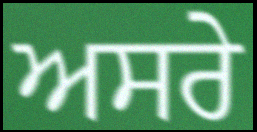
ਅਸਰੇ